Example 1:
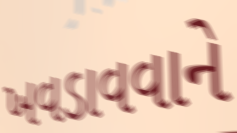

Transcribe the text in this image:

ખવડાવવાને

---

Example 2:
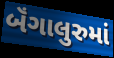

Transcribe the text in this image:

બૅંગાલુરુમાં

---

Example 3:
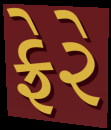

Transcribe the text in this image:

ફ્રેરે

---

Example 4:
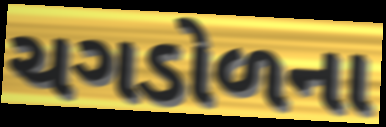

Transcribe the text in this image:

ચગડોળના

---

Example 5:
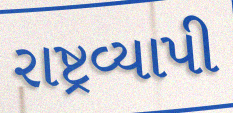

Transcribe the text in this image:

રાષ્ટ્રવ્યાપી